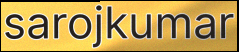
sarojkumar